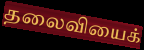
தலைவியைக்